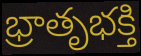
భ్రాతృభక్తి